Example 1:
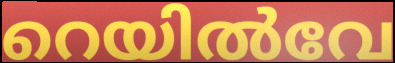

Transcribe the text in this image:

റെയിൽവേ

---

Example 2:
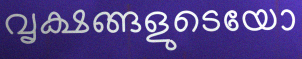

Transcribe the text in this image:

വൃക്ഷങ്ങളുടെയോ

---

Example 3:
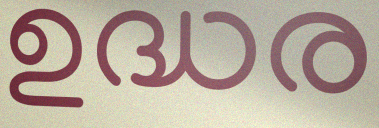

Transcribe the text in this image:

ഉദ്ധര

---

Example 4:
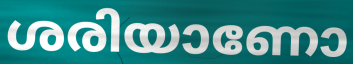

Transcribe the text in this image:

ശരിയാണോ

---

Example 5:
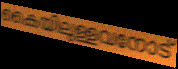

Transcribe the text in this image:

കൈയിലുള്ളവനോട്